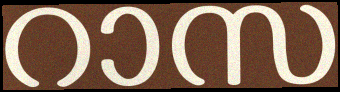
റാസ